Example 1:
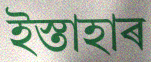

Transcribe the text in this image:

ইস্তাহাৰ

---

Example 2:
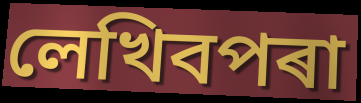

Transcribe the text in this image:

লেখিবপৰা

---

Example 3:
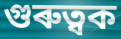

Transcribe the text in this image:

গুৰুত্বক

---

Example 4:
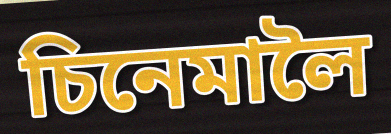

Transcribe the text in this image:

চিনেমালৈ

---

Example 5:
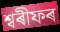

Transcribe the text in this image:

শ্বৰীফৰ